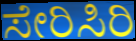
ಸೇರಿಸಿರಿ